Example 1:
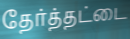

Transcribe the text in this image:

தேர்த்தட்டை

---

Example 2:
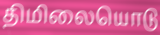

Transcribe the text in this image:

திமிலையொடு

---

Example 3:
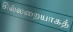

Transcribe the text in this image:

சில்லறையாகத்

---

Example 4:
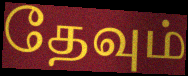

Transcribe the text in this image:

தேவும்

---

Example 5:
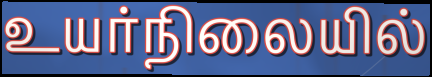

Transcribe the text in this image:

உயர்நிலையில்